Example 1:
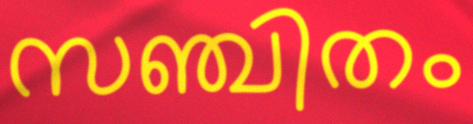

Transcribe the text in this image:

സഞ്ചിതം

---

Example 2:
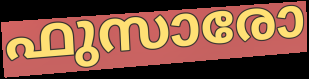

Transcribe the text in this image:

ഫുസാരോ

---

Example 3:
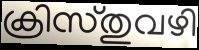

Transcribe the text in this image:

ക്രിസ്തുവഴി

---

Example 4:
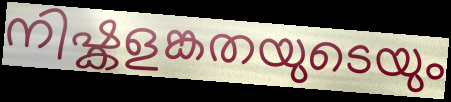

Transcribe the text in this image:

നിഷ്കളങ്കതയുടെയും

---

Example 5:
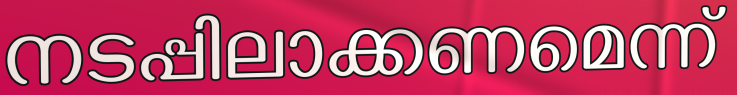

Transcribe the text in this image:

നടപ്പിലാക്കണമെന്ന്